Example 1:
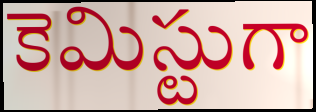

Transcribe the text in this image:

కెమిస్టుగా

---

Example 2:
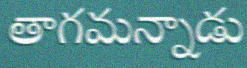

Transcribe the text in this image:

తాగమన్నాడు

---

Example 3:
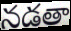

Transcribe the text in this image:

నడతా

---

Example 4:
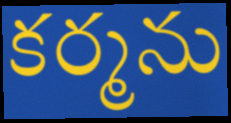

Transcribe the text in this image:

కర్మను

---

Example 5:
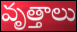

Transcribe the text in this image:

వృత్తాలు